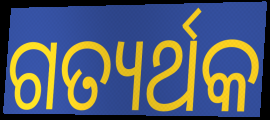
ଗତ୍ୟର୍ଥକ